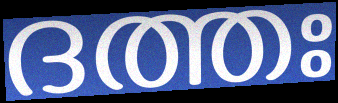
ദത്തഃ